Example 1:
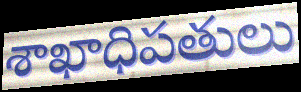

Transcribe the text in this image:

శాఖాధిపతులు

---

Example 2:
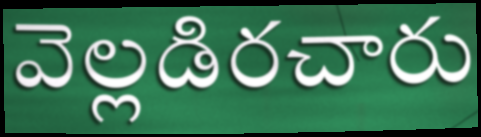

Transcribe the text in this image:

వెల్లడిరచారు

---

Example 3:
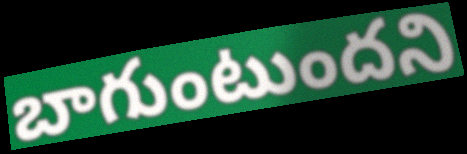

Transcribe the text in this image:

బాగుంటుందని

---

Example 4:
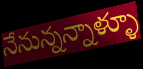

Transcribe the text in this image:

నేనున్నన్నాళ్ళూ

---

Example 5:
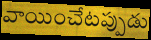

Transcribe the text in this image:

వాయించేటప్పుడు